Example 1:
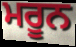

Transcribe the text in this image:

ਮਰੂਨ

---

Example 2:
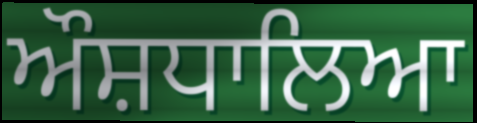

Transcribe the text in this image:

ਔਸ਼ਧਾਲਿਆ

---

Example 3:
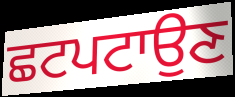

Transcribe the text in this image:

ਛਟਪਟਾਉਣ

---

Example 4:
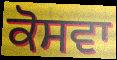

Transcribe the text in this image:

ਕੋਸਵਾ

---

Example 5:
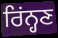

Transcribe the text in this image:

ਰਿਂਨ੍ਹਣ